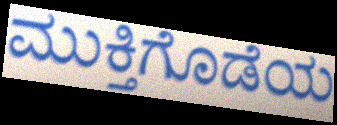
ಮುಕ್ತಿಗೊಡೆಯ